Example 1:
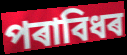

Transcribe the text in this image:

পৰাবিধৰ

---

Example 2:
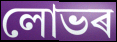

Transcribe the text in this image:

লোভৰ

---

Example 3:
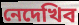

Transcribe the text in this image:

নেদেখিব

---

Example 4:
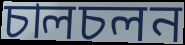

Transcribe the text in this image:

চালচলন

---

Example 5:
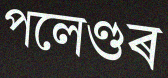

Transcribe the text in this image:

পলেণ্ডৰ